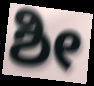
ಶೀ